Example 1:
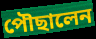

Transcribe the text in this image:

পৌছালেন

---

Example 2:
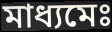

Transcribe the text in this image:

মাধ্যমেঃ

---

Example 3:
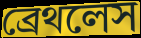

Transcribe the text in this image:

ব্রেথলেস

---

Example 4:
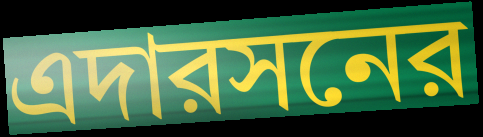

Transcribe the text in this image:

এদারসনের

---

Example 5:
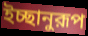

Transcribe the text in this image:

ইচ্ছানুরূপ